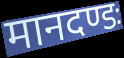
मानदण्डः